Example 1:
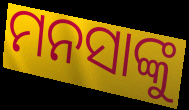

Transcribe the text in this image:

ମନସାଙ୍କୁ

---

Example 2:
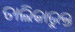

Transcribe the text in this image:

ତାଲିକାଭୁକ୍ତ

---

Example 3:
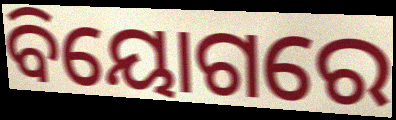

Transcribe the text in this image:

ବିୟୋଗରେ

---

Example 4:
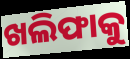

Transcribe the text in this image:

ଖଲିଫାକୁ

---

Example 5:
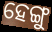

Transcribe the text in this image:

ହେଙ୍ଗୁ